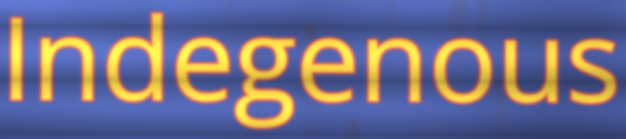
Indegenous